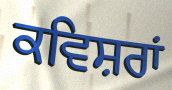
ਕਵਿਸ਼ਰਾਂ